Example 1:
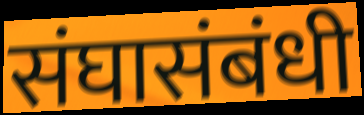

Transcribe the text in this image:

संघासंबंधी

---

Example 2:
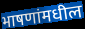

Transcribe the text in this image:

भाषणांमधील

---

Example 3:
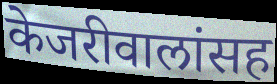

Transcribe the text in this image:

केजरीवालांसह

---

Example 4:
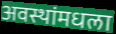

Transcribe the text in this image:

अवस्थांमधला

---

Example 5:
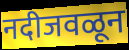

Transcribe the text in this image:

नदीजवळून